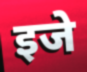
इजे